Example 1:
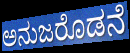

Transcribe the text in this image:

ಅನುಜರೊಡನೆ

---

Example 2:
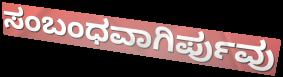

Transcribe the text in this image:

ಸಂಬಂಧವಾಗಿರ್ಪುವು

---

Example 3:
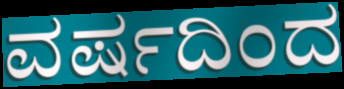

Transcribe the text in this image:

ವರ್ಷದಿಂದ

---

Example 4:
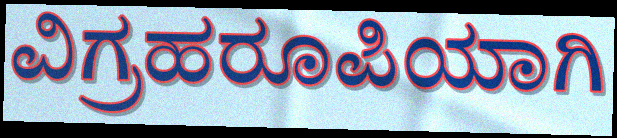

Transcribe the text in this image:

ವಿಗ್ರಹರೂಪಿಯಾಗಿ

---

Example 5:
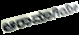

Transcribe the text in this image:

ಆರಾಮಾಗಿಯೇ